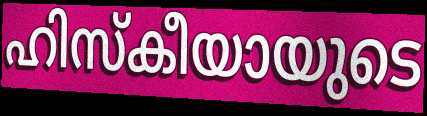
ഹിസ്കീയായുടെ